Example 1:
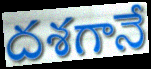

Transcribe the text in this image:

దశగానే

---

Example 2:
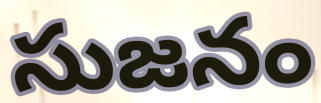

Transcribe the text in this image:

సుజనం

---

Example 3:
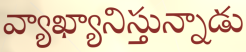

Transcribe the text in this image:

వ్యాఖ్యానిస్తున్నాడు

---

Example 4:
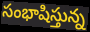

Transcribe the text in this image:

సంభాషిస్తున్న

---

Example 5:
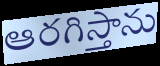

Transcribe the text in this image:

ఆరగిస్తాను